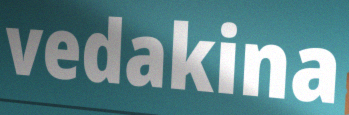
vedakina